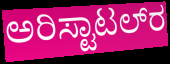
ಅರಿಸ್ಟಾಟಲ್‍ರ